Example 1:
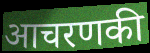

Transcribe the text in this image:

आचरणकी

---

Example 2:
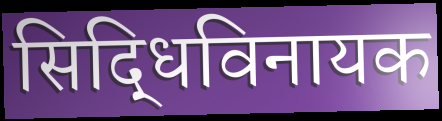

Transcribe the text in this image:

सिद्धिविनायक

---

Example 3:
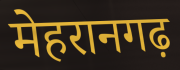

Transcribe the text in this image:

मेहरानगढ़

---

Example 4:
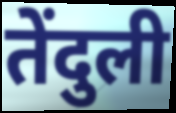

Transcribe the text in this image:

तेंदुली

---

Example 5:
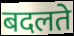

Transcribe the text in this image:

बदलते